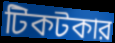
টিকটকার